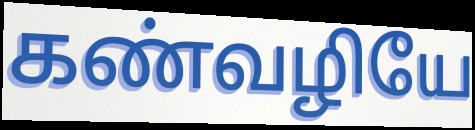
கண்வழியே